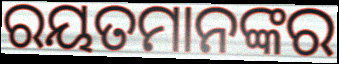
ରୟତମାନଙ୍କର